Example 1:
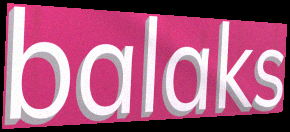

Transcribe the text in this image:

balaks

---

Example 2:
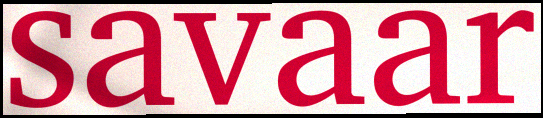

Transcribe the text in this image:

savaar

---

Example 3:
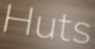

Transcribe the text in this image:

Huts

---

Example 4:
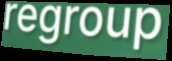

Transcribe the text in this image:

regroup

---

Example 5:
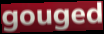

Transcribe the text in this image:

gouged